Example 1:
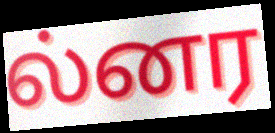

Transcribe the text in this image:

ல்னர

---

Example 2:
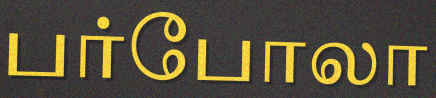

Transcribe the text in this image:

பர்போலா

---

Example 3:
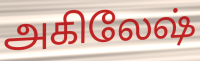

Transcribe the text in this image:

அகிலேஷ்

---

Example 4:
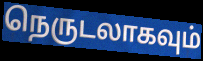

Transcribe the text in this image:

நெருடலாகவும்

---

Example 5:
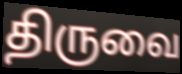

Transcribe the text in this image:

திருவை